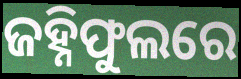
ଜହ୍ନିଫୁଲରେ